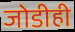
जोडीही